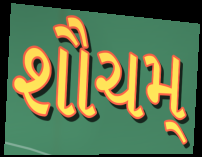
શૌચમ્